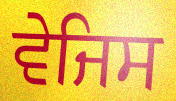
ਵੇਜਿਸ